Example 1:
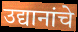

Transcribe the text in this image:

उद्यानांचे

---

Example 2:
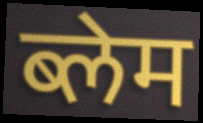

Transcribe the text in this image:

ब्लेम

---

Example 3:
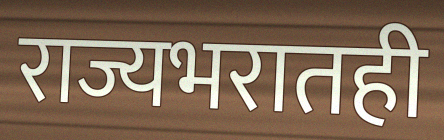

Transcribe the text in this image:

राज्यभरातही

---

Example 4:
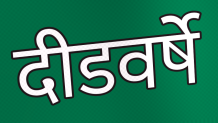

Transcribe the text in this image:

दीडवर्षे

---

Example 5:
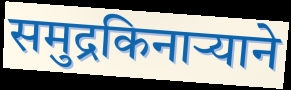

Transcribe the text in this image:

समुद्रकिनाऱ्याने